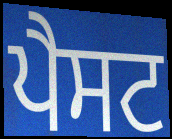
ਪੈਸਟ